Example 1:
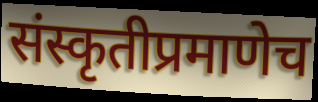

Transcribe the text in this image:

संस्कृतीप्रमाणेच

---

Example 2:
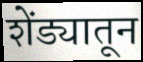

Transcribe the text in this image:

शेंड्यातून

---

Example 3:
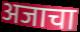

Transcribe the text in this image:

अजाचा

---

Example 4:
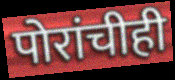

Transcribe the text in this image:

पोरांचीही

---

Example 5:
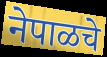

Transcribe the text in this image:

नेपाळचे